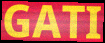
GATI